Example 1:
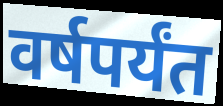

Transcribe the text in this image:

वर्षपर्यंत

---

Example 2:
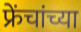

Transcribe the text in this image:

फ्रेंचांच्या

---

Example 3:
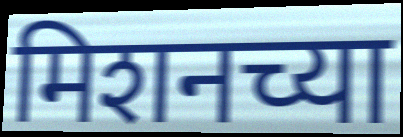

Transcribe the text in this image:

मिशनच्या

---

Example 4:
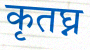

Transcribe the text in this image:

कृतघ्न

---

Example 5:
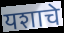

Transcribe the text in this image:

यशाचे